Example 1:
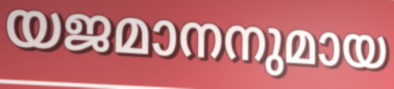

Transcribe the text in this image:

യജമാനനുമായ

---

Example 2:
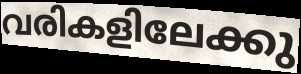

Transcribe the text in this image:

വരികളിലേക്കു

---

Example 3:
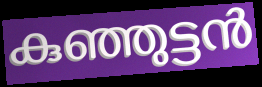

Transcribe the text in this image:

കുഞ്ഞുട്ടൻ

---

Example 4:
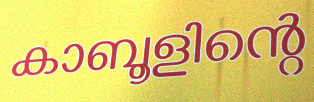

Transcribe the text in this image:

കാബൂളിന്റെ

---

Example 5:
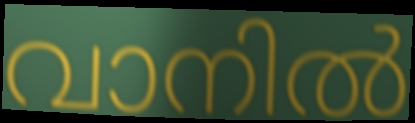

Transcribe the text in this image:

വാനിൽ